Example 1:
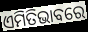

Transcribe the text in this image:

ଏମିତିଭାବରେ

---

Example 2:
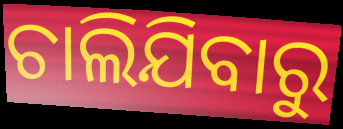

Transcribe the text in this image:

ଚାଲିଯିବାରୁ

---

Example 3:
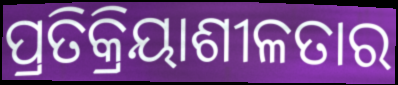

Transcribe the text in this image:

ପ୍ରତିକ୍ରିୟାଶୀଳତାର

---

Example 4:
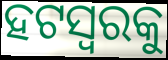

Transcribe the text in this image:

ହଟସ୍ଵରକୁ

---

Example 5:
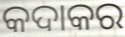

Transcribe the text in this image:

କଦାକର